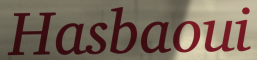
Hasbaoui